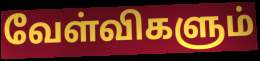
வேள்விகளும்